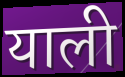
याली